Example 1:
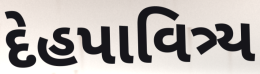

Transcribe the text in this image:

દેહપાવિત્ર્ય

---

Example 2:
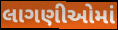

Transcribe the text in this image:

લાગણીઓમાં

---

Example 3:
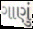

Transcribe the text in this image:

ગાણું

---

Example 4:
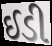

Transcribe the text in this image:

ઈડી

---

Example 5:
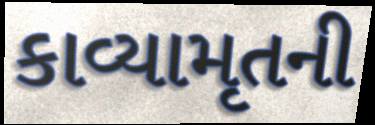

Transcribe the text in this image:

કાવ્યામૃતની